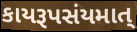
કાયરૂપસંયમાત્